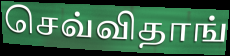
செவ்விதாங்